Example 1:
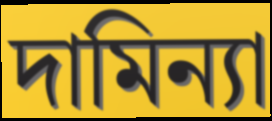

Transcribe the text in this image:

দামিন্যা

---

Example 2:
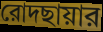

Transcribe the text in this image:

রোদছায়ার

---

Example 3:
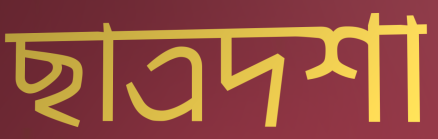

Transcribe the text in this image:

ছাত্রদশা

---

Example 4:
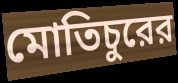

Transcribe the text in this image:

মোতিচুরের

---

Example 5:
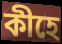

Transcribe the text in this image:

কীহে